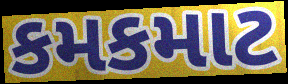
કમકમાટ